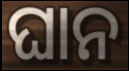
ଘାନ